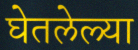
घेतलेल्या